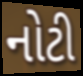
નોટી